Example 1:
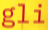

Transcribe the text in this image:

gli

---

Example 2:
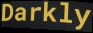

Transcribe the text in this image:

Darkly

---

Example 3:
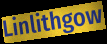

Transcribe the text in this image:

Linlithgow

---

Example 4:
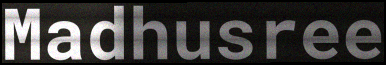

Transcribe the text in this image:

Madhusree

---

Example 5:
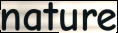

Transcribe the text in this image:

nature